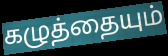
கழுத்தையும்